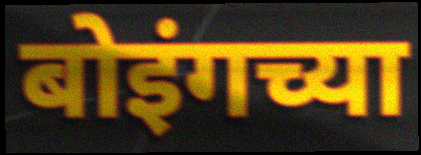
बोइंगच्या